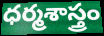
ధర్మశాస్త్రం